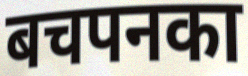
बचपनका